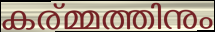
കര്മ്മത്തിനും